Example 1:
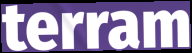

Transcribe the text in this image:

terram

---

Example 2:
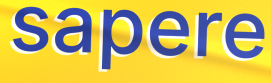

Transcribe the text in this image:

sapere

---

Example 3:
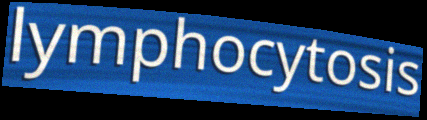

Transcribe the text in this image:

lymphocytosis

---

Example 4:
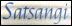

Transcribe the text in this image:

Satsangi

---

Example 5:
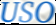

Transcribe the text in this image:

USO